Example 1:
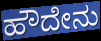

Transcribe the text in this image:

ಹೌದೇನು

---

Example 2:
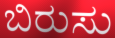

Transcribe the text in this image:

ಬಿರುಸು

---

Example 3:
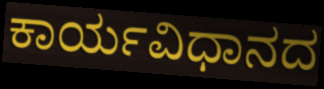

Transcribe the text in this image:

ಕಾರ್ಯವಿಧಾನದ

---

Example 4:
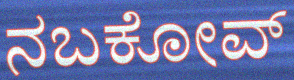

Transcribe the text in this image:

ನಬಕೋವ್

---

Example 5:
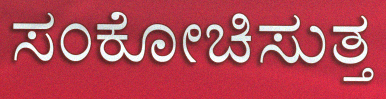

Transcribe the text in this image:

ಸಂಕೋಚಿಸುತ್ತ